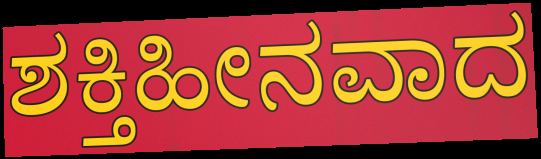
ಶಕ್ತಿಹೀನವಾದ